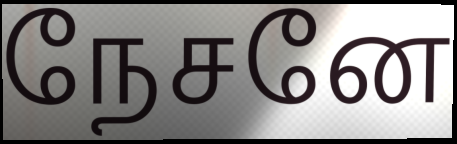
நேசனே